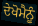
ਦੇਖੋਮੈਨੂੰ